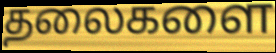
தலைகளை